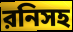
রনিসহ